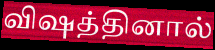
விஷத்தினால்